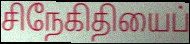
சிநேகிதியைப்